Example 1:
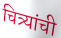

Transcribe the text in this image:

चित्र्यांची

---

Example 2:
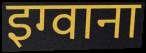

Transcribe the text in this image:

इग्वाना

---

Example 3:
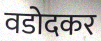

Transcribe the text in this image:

वडोदकर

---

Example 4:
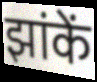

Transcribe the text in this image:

झांकें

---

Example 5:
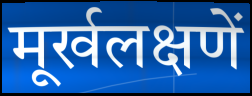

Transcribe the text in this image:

मूर्खलक्षणें